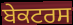
ਬੇਕਟਰਸ